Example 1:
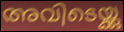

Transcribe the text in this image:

അവിടെയ്ക്കു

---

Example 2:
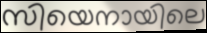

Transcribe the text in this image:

സിയെനായിലെ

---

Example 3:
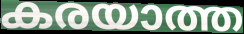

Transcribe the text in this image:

കരയാത്ത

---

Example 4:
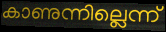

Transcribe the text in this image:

കാണുന്നില്ലെന്ന്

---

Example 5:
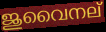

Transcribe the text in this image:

ജുവൈനല്